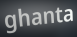
ghanta